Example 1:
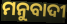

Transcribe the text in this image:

ମନୁବାଦୀ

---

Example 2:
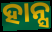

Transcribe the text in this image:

ହାନ୍ସ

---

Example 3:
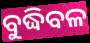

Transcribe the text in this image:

ବୁଦ୍ଧିବଳ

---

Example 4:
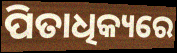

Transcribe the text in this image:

ପିତାଧିକ୍ୟରେ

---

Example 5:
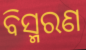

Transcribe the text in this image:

ବିସ୍ମରଣ